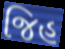
જિહ